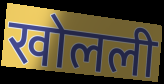
खोलली